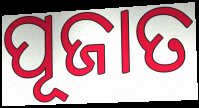
ପୂଜାତ